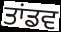
ਤਾਂਡਵ